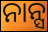
ନାନ୍ସ